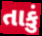
તાકું